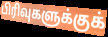
பிரிவுகளுக்குக்